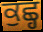
ਕੁਛ੍ਹ